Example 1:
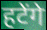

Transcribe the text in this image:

हटेंगे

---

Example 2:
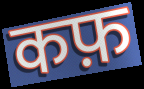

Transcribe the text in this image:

कफ़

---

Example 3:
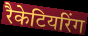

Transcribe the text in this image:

रैकेटियरिंग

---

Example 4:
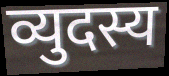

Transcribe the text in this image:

व्युदस्य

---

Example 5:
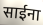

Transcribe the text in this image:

साईना